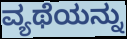
ವ್ಯಥೆಯನ್ನು